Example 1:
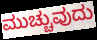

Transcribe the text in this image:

ಮುಚ್ಚುವುದು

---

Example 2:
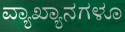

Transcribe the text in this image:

ವ್ಯಾಖ್ಯಾನಗಳೂ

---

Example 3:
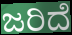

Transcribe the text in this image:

ಜರಿದೆ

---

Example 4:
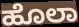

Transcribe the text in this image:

ಹೊಲಾ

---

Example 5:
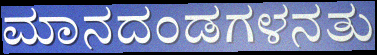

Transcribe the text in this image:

ಮಾನದಂಡಗಳನತು